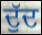
ਦੁੱਦ